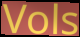
Vols